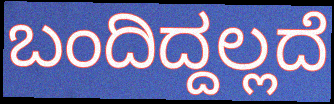
ಬಂದಿದ್ದಲ್ಲದೆ